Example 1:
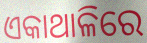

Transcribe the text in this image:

ଏକାଥାଳିରେ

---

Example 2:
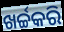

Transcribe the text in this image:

ଖର୍ଚ୍ଚକରି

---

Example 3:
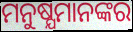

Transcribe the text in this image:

ମନୁଷ୍ଯମାନଙ୍କର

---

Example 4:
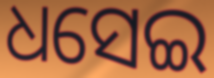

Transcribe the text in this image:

ଧସେଇ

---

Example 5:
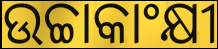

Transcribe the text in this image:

ଉଚ୍ଚାକାଂକ୍ଷୀ